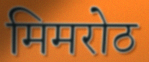
मिमरोठ